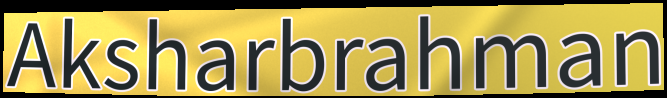
Aksharbrahman